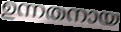
ഉന്നതനായ